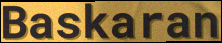
Baskaran